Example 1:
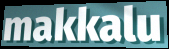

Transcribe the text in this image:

makkalu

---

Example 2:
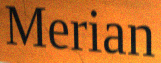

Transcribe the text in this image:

Merian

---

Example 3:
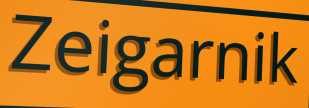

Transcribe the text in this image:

Zeigarnik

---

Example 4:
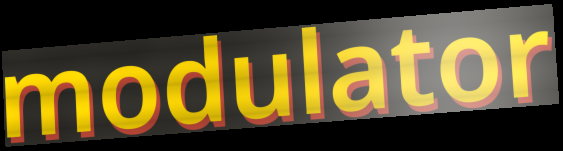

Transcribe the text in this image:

modulator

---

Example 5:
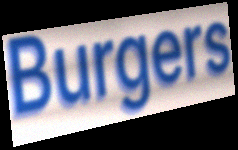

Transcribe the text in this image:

Burgers